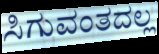
ಸಿಗುವಂತದಲ್ಲ